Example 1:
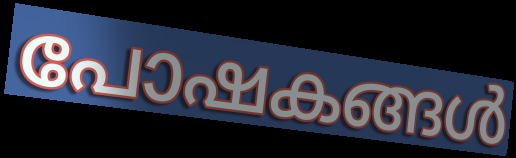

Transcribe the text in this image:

പോഷകങ്ങൾ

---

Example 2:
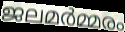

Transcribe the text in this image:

ജലമർമ്മരം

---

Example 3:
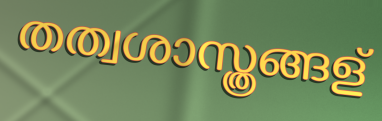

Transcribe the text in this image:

തത്വശാസ്ത്രങ്ങള്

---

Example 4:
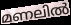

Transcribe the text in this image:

മണലിൽ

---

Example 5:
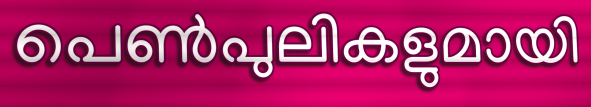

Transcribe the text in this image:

പെൺപുലികളുമായി